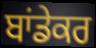
ਬਾਂਡੇਕਰ